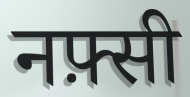
नफ़्सी